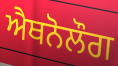
ਐਥਨੋਲੌਗ